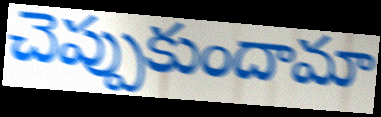
చెప్పుకుందామా